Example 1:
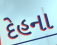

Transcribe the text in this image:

દેહના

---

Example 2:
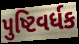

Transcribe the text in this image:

પુષ્ટિવર્ધક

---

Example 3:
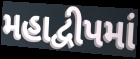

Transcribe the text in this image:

મહાદ્વીપમાં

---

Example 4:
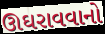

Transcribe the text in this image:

ઊઘરાવવાનો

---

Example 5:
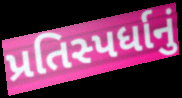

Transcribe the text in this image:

પ્રતિસ્પર્ધાનું